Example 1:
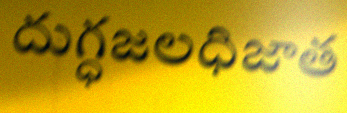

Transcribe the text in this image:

దుగ్ధజలధిజాత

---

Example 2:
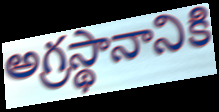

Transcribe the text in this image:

అగ్రస్థానానికి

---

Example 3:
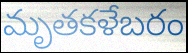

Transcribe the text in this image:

మృతకళేబరం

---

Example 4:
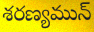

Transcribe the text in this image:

శరణ్యమున్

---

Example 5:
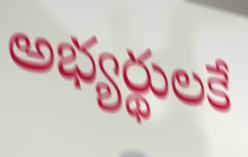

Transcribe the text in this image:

అభ్యర్థులకే